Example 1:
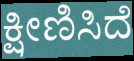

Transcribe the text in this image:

ಕ್ಷೀಣಿಸಿದೆ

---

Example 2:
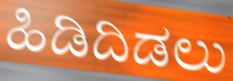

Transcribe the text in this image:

ಹಿಡಿದಿಡಲು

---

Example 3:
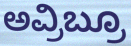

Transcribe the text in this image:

ಅವ್ರಿಬ್ರೂ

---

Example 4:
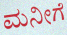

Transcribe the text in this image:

ಮನೀಗೆ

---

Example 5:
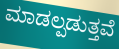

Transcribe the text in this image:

ಮಾಡಲ್ಪಡುತ್ತವೆ